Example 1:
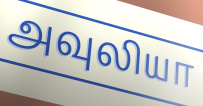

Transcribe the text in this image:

அவுலியா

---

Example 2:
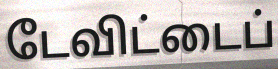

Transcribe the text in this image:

டேவிட்டைப்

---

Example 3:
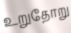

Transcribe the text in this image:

உறுதோறு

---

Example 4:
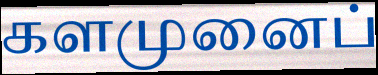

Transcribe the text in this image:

களமுனைப்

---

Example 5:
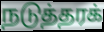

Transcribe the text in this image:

நடுத்தரக்